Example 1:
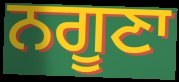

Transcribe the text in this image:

ਨਗੂਣਾ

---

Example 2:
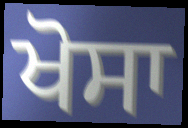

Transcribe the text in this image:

ਖੋਸਾ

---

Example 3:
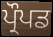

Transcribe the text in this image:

ਪ੍ਰੌਪਡ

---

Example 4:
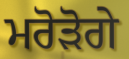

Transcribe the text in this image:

ਮਰੋੜੋਗੇ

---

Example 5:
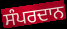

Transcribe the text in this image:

ਸੰਪਰਦਾਨ